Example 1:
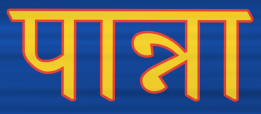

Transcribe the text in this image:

पान्ना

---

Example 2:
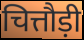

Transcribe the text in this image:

चित्तौड़ी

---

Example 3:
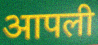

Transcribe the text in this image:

आपली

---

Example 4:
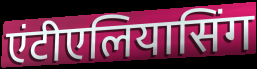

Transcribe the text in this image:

एंटीएलियासिंग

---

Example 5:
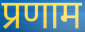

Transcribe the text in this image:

प्रणाम